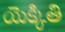
యెక్కితి